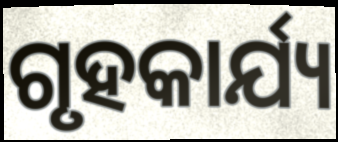
ଗୃହକାର୍ଯ୍ୟ